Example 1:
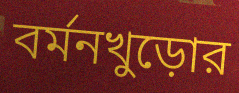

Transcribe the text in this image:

বর্মনখুড়োর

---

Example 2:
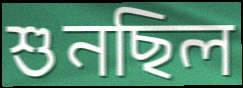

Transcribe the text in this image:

শুনছিল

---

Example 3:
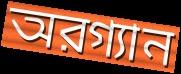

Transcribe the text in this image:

অরগ্যান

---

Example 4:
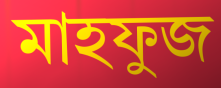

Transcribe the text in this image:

মাহফুজ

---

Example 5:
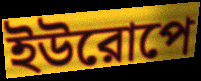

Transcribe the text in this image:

ইউরোপে